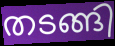
തടങ്ങി